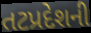
તટપ્રદેશની